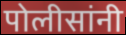
पोलीसांनी